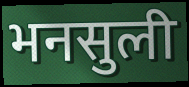
भनसुली